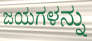
ಜಯಗಳನ್ನು